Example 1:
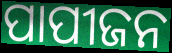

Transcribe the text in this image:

ପାପୀଜନ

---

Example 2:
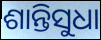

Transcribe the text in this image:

ଶାନ୍ତିସୁଧା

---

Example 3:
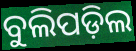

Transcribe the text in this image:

ବୁଲିପଡ଼ିଲ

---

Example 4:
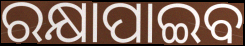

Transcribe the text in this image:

ରକ୍ଷାପାଇବ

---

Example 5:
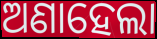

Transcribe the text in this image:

ଅଣାହେଲା